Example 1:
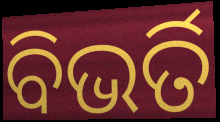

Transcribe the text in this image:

ବିଭର୍ତି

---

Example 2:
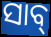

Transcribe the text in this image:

ସାବ୍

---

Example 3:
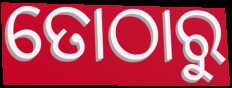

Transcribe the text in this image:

ତୋଠାରୁ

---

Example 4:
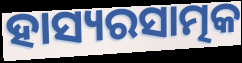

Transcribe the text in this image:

ହାସ୍ୟରସାତ୍ମକ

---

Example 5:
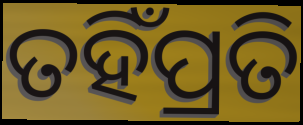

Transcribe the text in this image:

ତହିଁପ୍ରତି